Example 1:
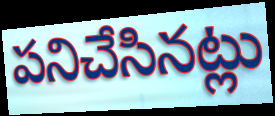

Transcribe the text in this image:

పనిచేసినట్లు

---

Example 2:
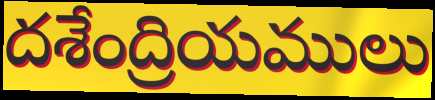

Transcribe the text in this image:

దశేంద్రియములు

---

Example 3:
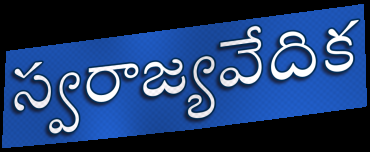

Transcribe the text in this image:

స్వరాజ్యవేదిక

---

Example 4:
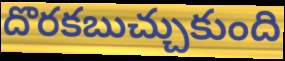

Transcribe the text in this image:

దొరకబుచ్చుకుంది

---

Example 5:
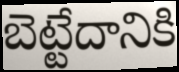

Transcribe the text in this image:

బెట్టేదానికి